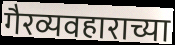
गैरव्यवहाराच्या